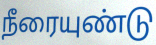
நீரையுண்டு